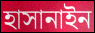
হাসানাইন